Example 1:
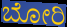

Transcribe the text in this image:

ಬೋರಿ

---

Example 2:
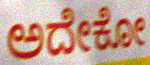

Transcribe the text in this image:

ಅದೇಕೋ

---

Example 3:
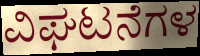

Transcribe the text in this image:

ವಿಘಟನೆಗಳ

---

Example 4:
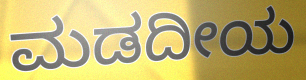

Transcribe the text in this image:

ಮಡದೀಯ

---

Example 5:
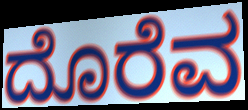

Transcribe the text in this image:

ದೊರೆವ